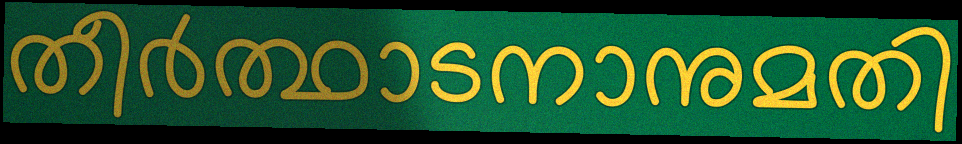
തീർത്ഥാടനാനുമതി